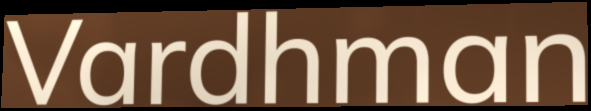
Vardhman